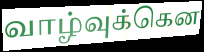
வாழ்வுக்கென